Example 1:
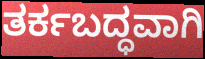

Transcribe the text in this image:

ತರ್ಕಬದ್ಧವಾಗಿ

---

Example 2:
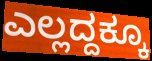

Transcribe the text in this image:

ಎಲ್ಲದ್ದಕ್ಕೂ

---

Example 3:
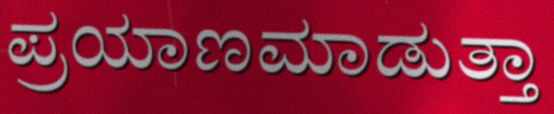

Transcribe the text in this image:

ಪ್ರಯಾಣಮಾಡುತ್ತಾ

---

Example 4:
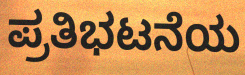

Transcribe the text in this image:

ಪ್ರತಿಭಟನೆಯ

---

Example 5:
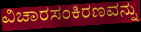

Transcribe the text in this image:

ವಿಚಾರಸಂಕಿರಣವನ್ನು